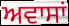
ਅਵਾਸਾਂ